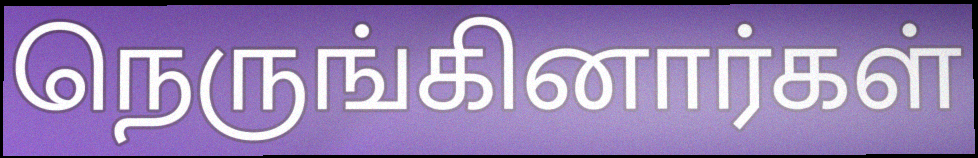
நெருங்கினார்கள்